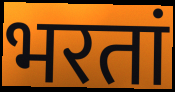
भरतां